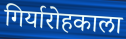
गिर्यारोहकाला